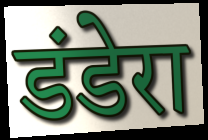
डंडेरा